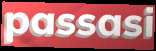
passasi